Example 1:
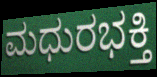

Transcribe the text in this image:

ಮಧುರಭಕ್ತಿ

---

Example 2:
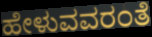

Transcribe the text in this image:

ಹೇಳುವವರಂತೆ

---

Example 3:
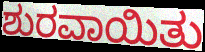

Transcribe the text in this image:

ಶುರವಾಯಿತು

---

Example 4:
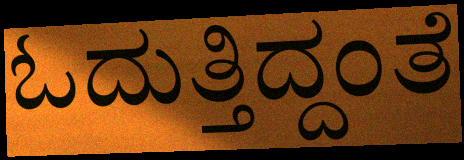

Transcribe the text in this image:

ಓದುತ್ತಿದ್ದಂತೆ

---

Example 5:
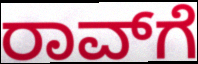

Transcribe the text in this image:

ರಾವ್‌ಗೆ